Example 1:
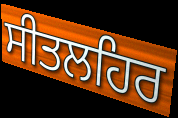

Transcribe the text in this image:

ਸੀਤਲਹਿਰ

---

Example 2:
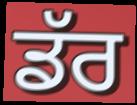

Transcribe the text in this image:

ਡੱਰ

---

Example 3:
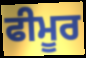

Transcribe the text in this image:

ਫੀਮੂਰ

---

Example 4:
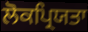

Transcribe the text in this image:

ਲੋਕਪ੍ਰਿਯਤਾ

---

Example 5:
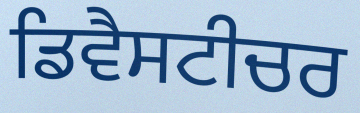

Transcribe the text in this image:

ਡਿਵੈਸਟੀਚਰ